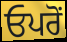
ਓਪਰੋਂ